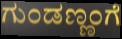
ಗುಂಡಣ್ಣಂಗೆ